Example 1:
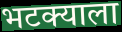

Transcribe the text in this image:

भटक्याला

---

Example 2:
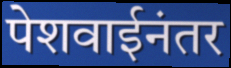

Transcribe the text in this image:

पेशवाईनंतर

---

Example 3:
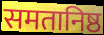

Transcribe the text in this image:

समतानिष्ठ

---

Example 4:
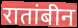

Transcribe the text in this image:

रातांबीन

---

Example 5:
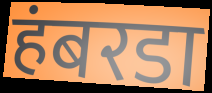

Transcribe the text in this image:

हंबरडा